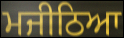
ਮਜੀਠਿਆ